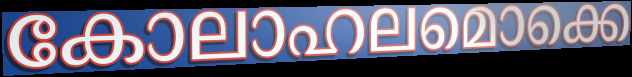
കോലാഹലമൊക്കെ